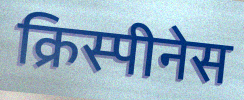
क्रिस्पीनेस